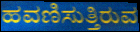
ಹವಣಿಸುತ್ತಿರುವ